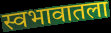
स्वभावातला